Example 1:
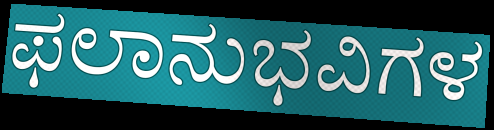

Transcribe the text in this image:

ಫಲಾನುಭವಿಗಳ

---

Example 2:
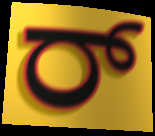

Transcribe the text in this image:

ರ್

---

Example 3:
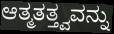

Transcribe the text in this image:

ಆತ್ಮತತ್ತ್ವವನ್ನು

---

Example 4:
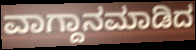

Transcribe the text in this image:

ವಾಗ್ದಾನಮಾಡಿದ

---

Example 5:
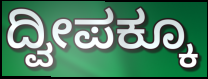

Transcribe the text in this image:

ದ್ವೀಪಕ್ಕೂ